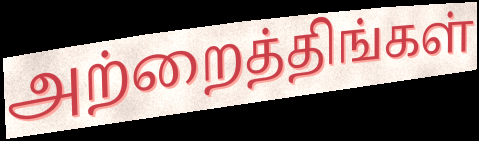
அற்றைத்திங்கள்